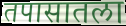
तपासातला